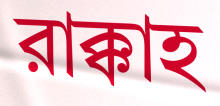
রাক্কাহ